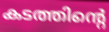
കടത്തിന്റെ